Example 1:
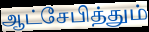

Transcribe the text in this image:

ஆட்சேபித்தும்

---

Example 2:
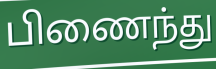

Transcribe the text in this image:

பிணைந்து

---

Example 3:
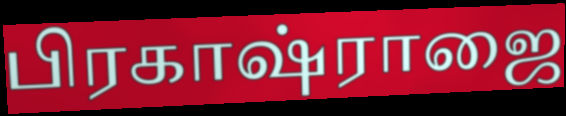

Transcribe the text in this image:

பிரகாஷ்ராஜை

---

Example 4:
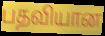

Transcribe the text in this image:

பதவியான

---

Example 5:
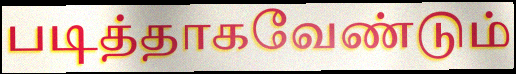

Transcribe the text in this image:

படித்தாகவேண்டும்